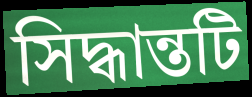
সিদ্ধান্তটি